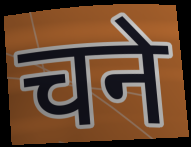
चने